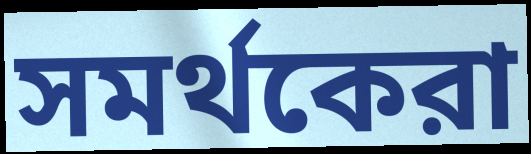
সমর্থকেরা